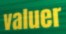
valuer